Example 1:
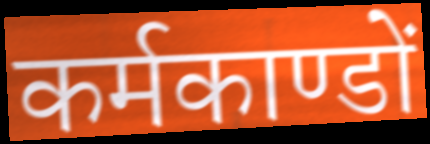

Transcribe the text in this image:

कर्मकाण्डों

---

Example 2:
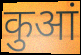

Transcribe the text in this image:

कुआं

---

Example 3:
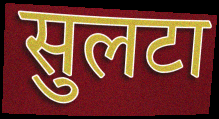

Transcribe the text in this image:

सुलटा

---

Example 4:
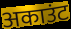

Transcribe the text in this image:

अकाउंट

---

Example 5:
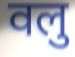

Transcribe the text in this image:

वलु